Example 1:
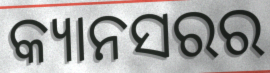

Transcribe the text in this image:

କ୍ୟାନସରର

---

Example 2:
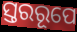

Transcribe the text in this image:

ସ୍ତରରୂପେ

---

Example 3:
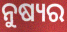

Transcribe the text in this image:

ନୁଷ୍ୟର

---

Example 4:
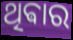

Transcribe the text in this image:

ଥିଵାର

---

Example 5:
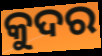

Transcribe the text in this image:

କୁଦର